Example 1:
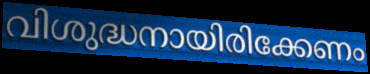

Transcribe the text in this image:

വിശുദ്ധനായിരിക്കേണം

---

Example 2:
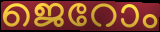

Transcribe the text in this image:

ജെറോം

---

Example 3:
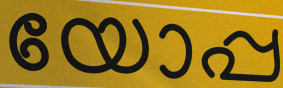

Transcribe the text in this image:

യോപ്പ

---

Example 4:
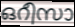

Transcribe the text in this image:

ഒറീസാ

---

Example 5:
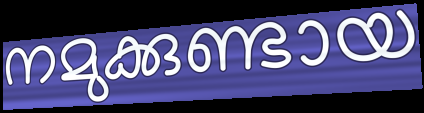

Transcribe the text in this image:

നമുക്കുണ്ടായ